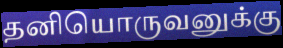
தனியொருவனுக்கு